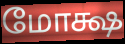
மோக்ஷ